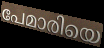
പേമാരിയെ